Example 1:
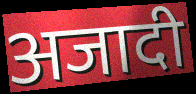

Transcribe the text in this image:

अजादी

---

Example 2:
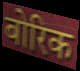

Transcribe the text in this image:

बोरिक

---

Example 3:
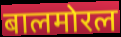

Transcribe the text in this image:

बालमोरल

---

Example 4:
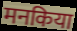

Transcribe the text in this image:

मनकिया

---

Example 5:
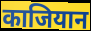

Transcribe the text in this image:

काजियान